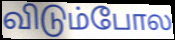
விடும்போல